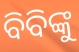
ବିବିଙ୍କୁ